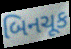
બિનચૂક